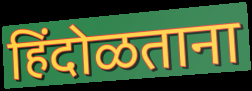
हिंदोळताना